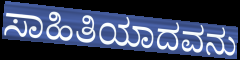
ಸಾಹಿತಿಯಾದವನು